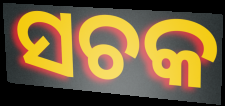
ସଚକ